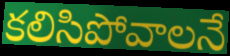
కలిసిపోవాలనే